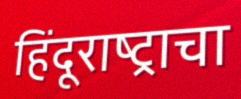
हिंदूराष्ट्राचा